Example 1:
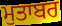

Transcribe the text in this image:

ਮੁਤਾਬਰ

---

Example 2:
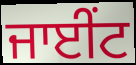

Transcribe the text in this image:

ਜਾਈਂਟ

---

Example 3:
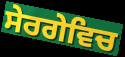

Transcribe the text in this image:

ਸੇਰਗੇਵਿਚ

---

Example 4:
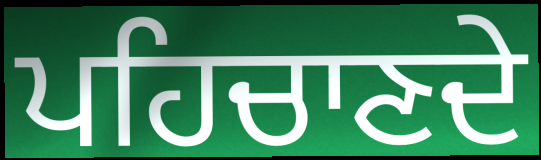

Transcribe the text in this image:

ਪਹਿਚਾਣਦੇ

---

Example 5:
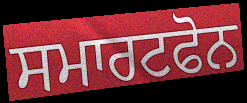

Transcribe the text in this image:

ਸਮਾਰਟਫੋਨ